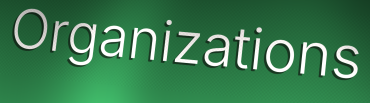
Organizations